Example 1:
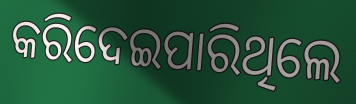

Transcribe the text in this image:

କରିଦେଇପାରିଥିଲେ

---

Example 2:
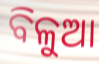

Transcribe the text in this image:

ବିଳୁଆ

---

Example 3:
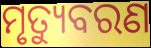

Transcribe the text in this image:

ମୃତ୍ୟୁବରଣ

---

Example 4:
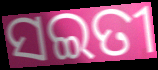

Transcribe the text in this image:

ସଇତୀ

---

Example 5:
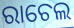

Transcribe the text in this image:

ରାଚେଲ